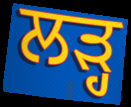
ਲੜ੍ਹ